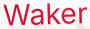
Waker